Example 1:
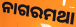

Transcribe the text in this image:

ନାଗରମଥା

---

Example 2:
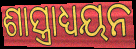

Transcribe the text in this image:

ଶାସ୍ତ୍ରାଧ୍ୟୟନ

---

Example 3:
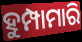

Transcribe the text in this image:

ହୁମ୍ପାମାରି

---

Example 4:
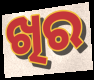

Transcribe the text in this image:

ଖିର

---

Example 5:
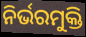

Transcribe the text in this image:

ନିର୍ଭରମୁକ୍ତି